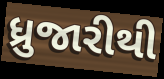
ધ્રુજારીથી